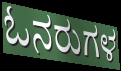
ಓನರುಗಳ